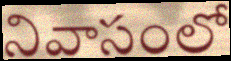
నివాసంలో